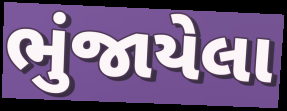
ભુંજાયેલા